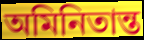
অমিনিতান্ত